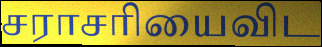
சராசரியைவிட